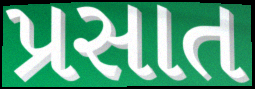
પ્રસાત